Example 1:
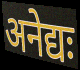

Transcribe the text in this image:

अनेद्यः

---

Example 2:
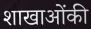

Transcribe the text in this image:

शाखाओंकी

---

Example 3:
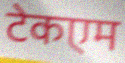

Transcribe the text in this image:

टेकएम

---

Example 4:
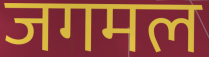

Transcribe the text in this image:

जगमल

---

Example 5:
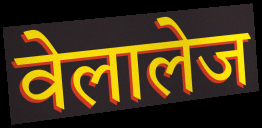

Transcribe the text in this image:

वेलालेज